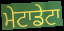
ਮੇਟਾਡੇਟਾ